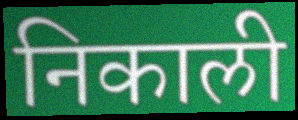
निकाली